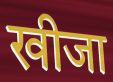
खीजा